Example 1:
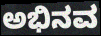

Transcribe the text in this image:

ಅಭಿನವ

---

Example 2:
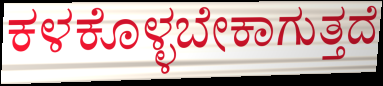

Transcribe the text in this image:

ಕಳಕೊಳ್ಳಬೇಕಾಗುತ್ತದೆ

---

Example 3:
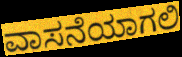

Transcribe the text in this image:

ವಾಸನೆಯಾಗಲಿ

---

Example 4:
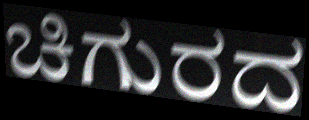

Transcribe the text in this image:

ಚಿಗುರದ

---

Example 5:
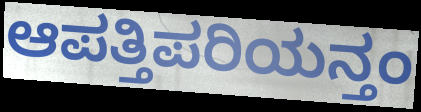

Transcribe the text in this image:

ಆಪತ್ತಿಪರಿಯನ್ತಂ